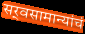
सर्वसामान्यांचं